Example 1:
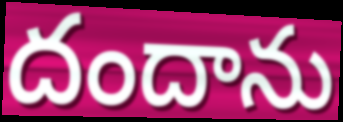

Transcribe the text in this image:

దందాను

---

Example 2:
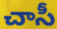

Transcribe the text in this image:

చాసీ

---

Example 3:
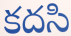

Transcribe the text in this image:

కదసి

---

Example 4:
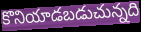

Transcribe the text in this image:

కొనియాడబడుచున్నది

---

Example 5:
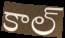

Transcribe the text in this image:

కాల్